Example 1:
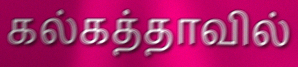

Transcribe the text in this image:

கல்கத்தாவில்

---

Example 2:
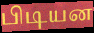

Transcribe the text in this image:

பிடியன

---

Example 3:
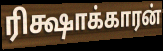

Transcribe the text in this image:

ரிக்ஷாக்காரன்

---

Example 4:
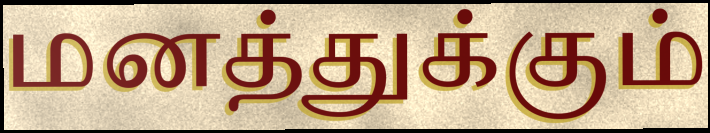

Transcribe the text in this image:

மனத்துக்கும்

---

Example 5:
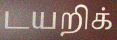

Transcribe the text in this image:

டயறிக்